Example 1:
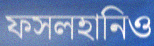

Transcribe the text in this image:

ফসলহানিও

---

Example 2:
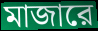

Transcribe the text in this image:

মাজারে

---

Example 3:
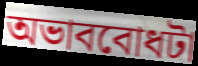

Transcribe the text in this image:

অভাববোধটা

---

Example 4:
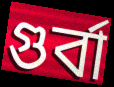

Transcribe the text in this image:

গুর্বা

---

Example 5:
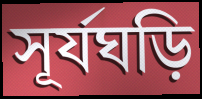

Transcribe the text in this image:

সূর্যঘড়ি